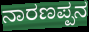
ನಾರಣಪ್ಪನ